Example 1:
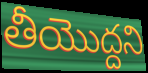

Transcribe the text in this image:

తీయొద్దని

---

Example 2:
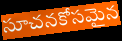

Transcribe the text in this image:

సూచనకోసమైన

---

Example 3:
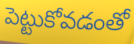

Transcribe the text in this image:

పెట్టుకోవడంతో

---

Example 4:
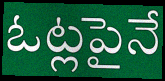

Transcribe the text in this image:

ఓట్లపైనే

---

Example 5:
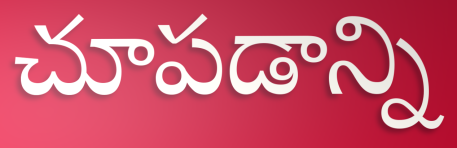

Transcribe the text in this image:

చూపడాన్ని